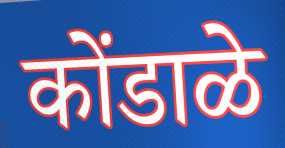
कोंडाळे